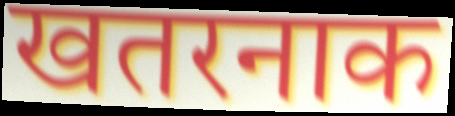
खतरनाक